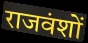
राजवंशों